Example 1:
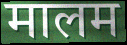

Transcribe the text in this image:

मालम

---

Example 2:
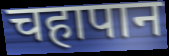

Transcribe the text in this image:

चहापान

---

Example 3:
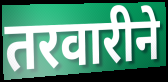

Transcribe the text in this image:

तरवारीने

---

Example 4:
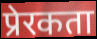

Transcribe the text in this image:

प्रेरकता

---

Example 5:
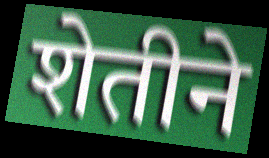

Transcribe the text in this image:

शेतीने